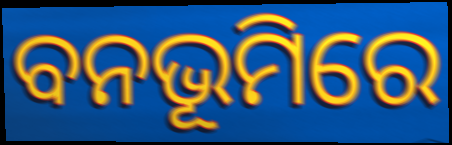
ବନଭୂମିରେ